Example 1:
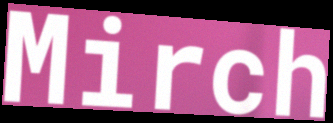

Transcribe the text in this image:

Mirch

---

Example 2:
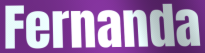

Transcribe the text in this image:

Fernanda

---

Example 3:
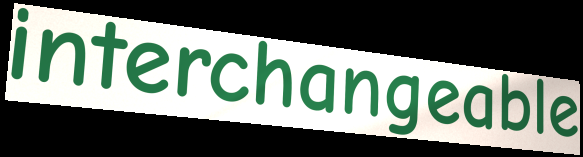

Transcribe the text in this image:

interchangeable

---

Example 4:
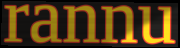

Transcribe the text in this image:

rannu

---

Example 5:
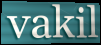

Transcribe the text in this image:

vakil